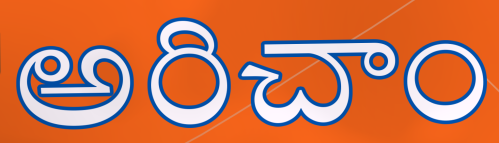
అరిచాం